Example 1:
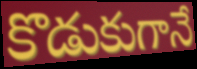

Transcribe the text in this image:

కొడుకుగానే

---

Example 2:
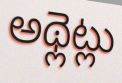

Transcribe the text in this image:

అథ్లెట్లు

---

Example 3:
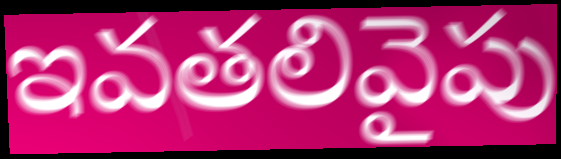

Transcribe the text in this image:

ఇవతలివైపు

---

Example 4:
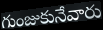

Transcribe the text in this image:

గుంజుకునేవారు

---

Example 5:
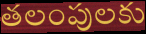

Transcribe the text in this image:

తలంపులకు